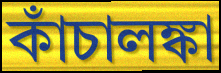
কাঁচালঙ্কা